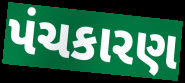
પંચકારણ